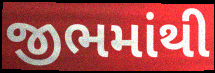
જીભમાંથી